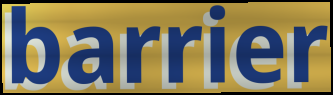
barrier